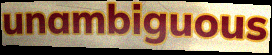
unambiguous